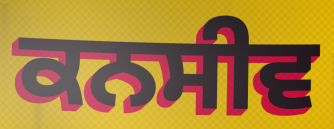
ਕਨਸੀਵ